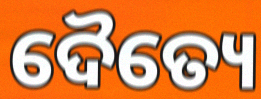
ଦୈତ୍ୟେ